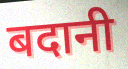
बदानी